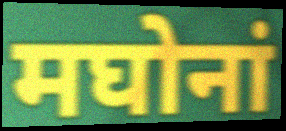
मघोनां